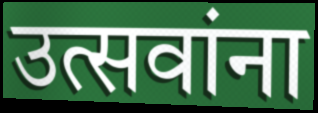
उत्सवांना